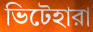
ভিটেহারা